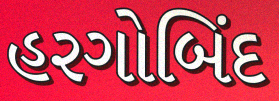
હરગોબિંદ